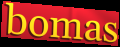
bomas